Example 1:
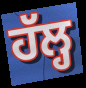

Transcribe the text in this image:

ਹੱਲ੍ਹ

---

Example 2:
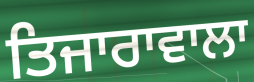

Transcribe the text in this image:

ਤਿਜਾਰਾਵਾਲਾ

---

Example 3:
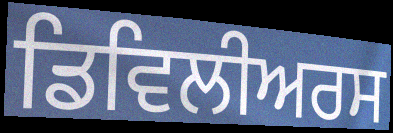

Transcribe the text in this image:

ਡਿਵਿਲੀਅਰਸ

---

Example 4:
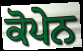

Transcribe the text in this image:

ਕੋਪੇਨ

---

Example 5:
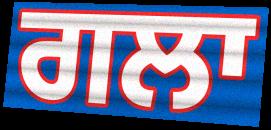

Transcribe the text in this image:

ਗਲਾ